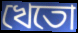
খেতো